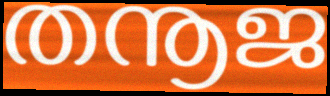
തനൂജ